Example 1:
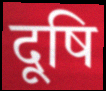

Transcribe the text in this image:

दूषि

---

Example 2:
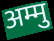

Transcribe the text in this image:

अम्मु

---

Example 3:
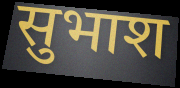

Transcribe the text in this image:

सुभाश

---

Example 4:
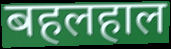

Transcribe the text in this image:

बहलहाल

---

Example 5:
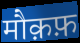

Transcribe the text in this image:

मौक़फ़